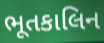
ભૂતકાલિન